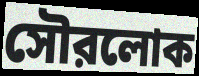
সৌরলোক